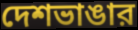
দেশভাঙার